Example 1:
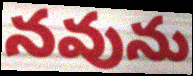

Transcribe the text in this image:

నవును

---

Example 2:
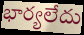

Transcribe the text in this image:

భార్యలేదు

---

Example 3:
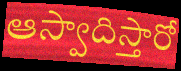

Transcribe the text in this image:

ఆస్వాదిస్తారో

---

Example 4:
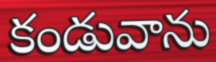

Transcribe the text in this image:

కండువాను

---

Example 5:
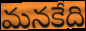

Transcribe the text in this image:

మనకేది